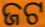
ଜଟ